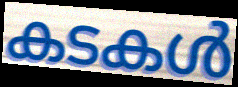
കടകൾ